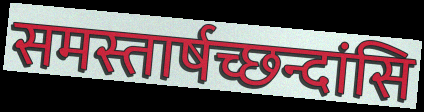
समस्तार्षच्छन्दांसि